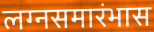
लग्नसमारंभास